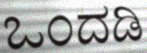
ಒಂದಡಿ